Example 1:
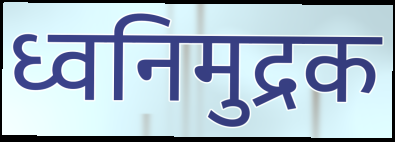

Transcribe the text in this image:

ध्वनिमुद्रक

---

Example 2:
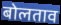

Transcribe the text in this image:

बोलताव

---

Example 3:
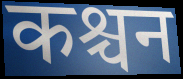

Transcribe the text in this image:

कश्चन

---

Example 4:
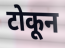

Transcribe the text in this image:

टोकून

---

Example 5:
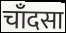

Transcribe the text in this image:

चाँदसा